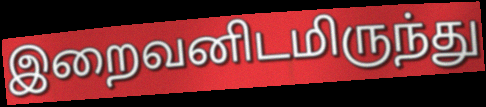
இறைவனிடமிருந்து